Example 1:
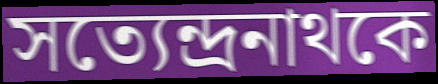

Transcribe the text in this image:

সত্যেন্দ্রনাথকে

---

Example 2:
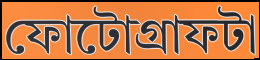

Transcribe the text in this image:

ফোটোগ্রাফটা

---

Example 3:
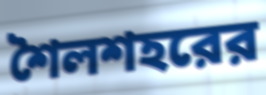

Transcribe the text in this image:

শৈলশহরের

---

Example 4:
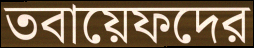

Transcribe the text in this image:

তবায়েফদের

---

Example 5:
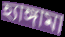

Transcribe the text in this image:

হ্যাঙ্গামা